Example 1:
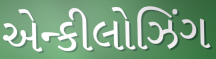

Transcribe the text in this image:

એન્કીલોઝિંગ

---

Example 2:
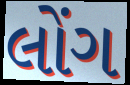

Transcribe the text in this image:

લોંગ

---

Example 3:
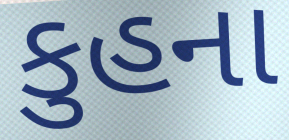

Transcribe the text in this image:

કુહના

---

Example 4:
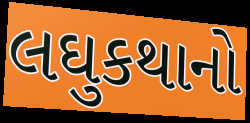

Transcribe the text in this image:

લઘુકથાનો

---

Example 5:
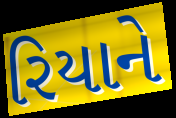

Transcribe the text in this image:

રિયાને